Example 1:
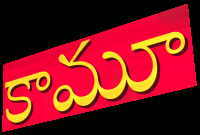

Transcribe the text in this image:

కామూ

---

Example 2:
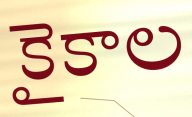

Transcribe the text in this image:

కైకాల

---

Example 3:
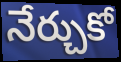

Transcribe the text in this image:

నేర్చుకో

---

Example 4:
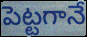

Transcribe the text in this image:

పెట్టగానే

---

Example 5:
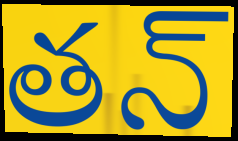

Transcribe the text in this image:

తన్